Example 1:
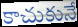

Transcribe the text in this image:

కాచుకునే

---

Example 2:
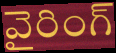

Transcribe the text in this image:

వైరింగ్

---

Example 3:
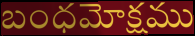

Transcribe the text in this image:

బంధమోక్షము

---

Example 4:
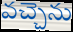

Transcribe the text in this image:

వచ్చెను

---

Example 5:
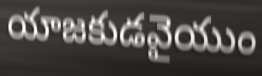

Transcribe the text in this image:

యాజకుడవైయుం